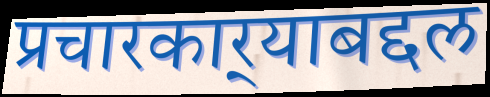
प्रचारकार्याबद्दल